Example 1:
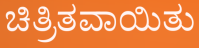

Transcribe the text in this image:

ಚಿತ್ರಿತವಾಯಿತು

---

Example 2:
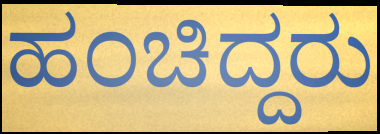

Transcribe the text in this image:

ಹಂಚಿದ್ದರು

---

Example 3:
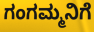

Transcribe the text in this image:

ಗಂಗಮ್ಮನಿಗೆ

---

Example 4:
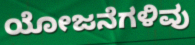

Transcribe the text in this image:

ಯೋಜನೆಗಳಿವು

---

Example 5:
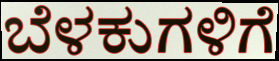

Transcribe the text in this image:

ಬೆಳಕುಗಳಿಗೆ